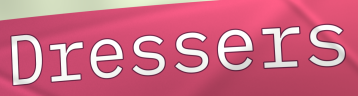
Dressers